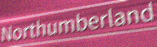
Northumberland